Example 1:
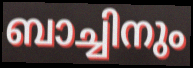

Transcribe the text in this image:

ബാച്ചിനും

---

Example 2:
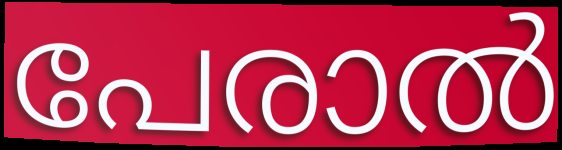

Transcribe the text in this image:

പേരാൽ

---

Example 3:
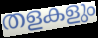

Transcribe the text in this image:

തളകളും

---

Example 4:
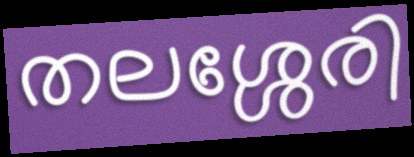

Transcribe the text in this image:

തലശ്ശേരി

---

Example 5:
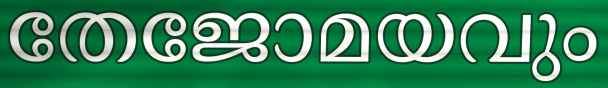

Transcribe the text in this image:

തേജോമയവും